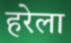
हरेला